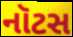
નૉટસ